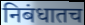
निबंधातच